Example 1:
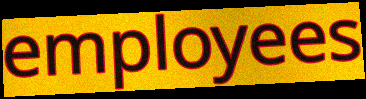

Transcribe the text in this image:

employees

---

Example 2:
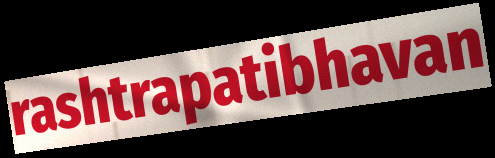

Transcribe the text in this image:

rashtrapatibhavan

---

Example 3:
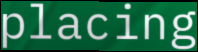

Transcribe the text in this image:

placing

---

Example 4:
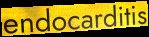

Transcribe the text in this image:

endocarditis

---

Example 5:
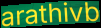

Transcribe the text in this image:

arathivb